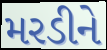
મરડીને